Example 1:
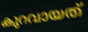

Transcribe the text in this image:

കുറവായത്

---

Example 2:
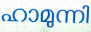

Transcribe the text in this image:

ഹാമുന്നി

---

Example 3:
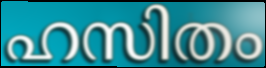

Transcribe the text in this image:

ഹസിതം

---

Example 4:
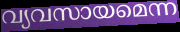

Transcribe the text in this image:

വ്യവസായമെന്ന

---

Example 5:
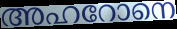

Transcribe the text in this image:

അഹറോനെ